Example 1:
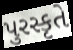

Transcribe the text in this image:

પુરસ્કૃતે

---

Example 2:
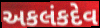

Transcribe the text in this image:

અકલંકદેવ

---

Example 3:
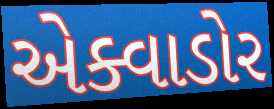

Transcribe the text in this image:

એક્વાડોર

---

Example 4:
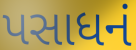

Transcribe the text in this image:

પસાધનં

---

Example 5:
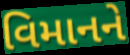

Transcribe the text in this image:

વિમાનને